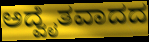
ಅದ್ವೈತವಾದದ